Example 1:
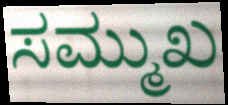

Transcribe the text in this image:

ಸಮ್ಮುಖ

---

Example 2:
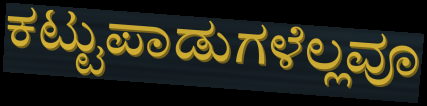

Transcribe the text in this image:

ಕಟ್ಟುಪಾಡುಗಳೆಲ್ಲವೂ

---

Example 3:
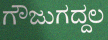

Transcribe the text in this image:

ಗೌಜುಗದ್ದಲ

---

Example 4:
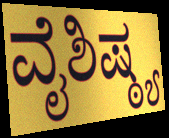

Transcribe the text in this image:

ವೈಶಿಷ್ಠ್ಯ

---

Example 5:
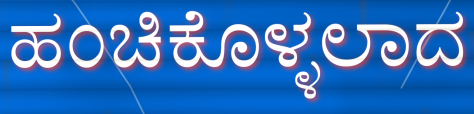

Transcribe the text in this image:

ಹಂಚಿಕೊಳ್ಳಲಾದ